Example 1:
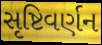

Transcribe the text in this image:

સૃષ્ટિવર્ણન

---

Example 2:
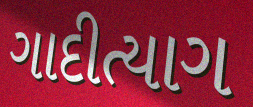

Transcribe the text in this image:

ગાદીત્યાગ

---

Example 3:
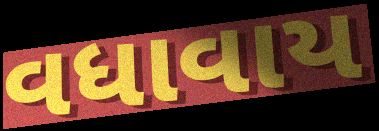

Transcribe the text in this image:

વધાવાય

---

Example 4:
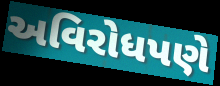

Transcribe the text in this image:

અવિરોધપણે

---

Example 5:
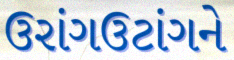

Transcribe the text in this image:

ઉરાંગઉટાંગને